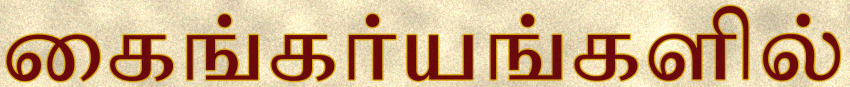
கைங்கர்யங்களில்